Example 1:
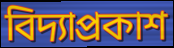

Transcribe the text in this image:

বিদ্যাপ্রকাশ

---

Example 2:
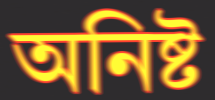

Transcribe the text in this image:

অনিষ্ট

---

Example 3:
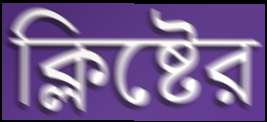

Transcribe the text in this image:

ক্লিষ্টের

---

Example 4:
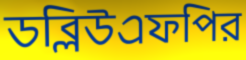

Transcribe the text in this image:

ডব্লিউএফপির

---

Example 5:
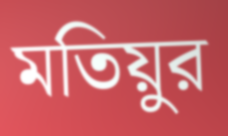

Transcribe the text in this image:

মতিয়ুর